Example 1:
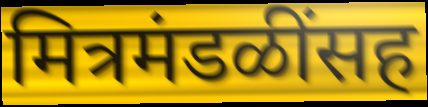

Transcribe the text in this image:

मित्रमंडळींसह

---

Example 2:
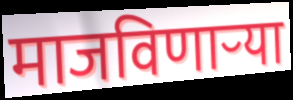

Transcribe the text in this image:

माजविणाऱ्या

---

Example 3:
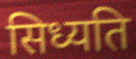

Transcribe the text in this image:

सिध्यति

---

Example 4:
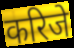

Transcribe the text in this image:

करिजे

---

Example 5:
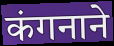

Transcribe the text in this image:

कंगनाने